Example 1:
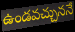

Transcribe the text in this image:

ఉండవచ్చుననే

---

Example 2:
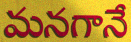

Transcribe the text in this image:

మనగానే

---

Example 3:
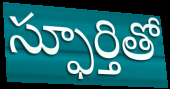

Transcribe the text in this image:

స్ఫూర్తితో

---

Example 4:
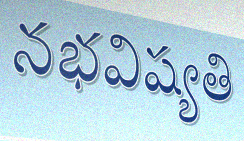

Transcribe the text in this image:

నభవిష్యతి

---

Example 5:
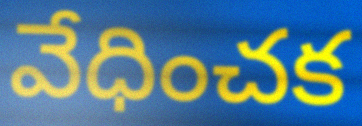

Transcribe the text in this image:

వేధించక